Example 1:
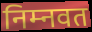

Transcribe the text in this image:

निम्नवत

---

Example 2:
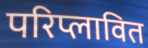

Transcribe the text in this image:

परिप्लावित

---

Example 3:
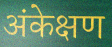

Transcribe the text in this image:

अंकेक्षण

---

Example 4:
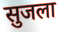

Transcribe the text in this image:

सुजला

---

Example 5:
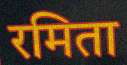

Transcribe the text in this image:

रमिता